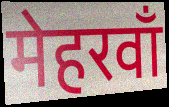
मेहरवाँ